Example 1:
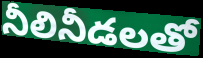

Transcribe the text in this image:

నీలినీడలతో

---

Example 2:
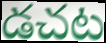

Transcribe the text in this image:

డచట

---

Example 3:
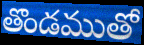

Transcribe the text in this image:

తొండముతో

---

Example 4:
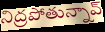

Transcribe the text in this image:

నిద్రపోతున్నావ్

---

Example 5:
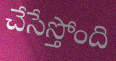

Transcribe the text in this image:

చేసేస్తోంది